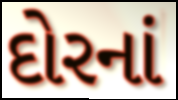
દોરનાં